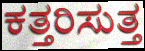
ಕತ್ತರಿಸುತ್ತ